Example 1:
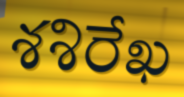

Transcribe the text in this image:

శశిరేఖ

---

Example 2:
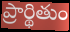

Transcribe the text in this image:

ప్రార్థితుం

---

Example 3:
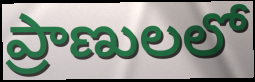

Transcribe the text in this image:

ప్రాణులలో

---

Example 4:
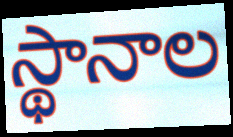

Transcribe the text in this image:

స్థానాల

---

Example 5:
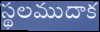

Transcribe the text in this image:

స్థలముదాక